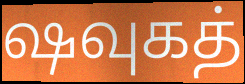
ஷவுகத்